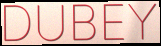
DUBEY